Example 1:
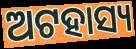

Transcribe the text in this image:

ଅଟହାସ୍ୟ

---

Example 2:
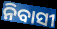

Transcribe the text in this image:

ନିବାସୀ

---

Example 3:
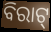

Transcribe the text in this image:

ବିରାଟ୍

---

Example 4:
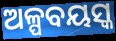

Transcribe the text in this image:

ଅଳ୍ପବୟସ୍କ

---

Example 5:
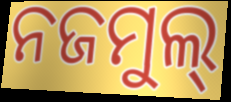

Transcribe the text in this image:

ନଜମୁଲ୍